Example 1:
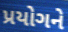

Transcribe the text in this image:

પ્રયોગને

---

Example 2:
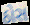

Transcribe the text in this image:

ઠોસ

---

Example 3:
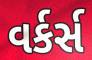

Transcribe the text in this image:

વર્કર્સ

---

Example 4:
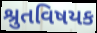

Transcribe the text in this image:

શ્રુતવિષયક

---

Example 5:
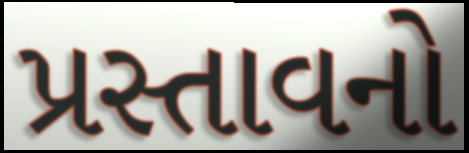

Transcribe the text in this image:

પ્રસ્તાવનો